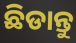
ଛିଡାନ୍ତୁ